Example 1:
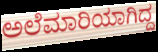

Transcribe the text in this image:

ಅಲೆಮಾರಿಯಾಗಿದ್ದ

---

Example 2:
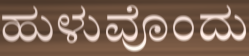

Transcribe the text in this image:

ಹುಳುವೊಂದು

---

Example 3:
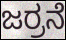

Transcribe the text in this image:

ಜರ್ರನೆ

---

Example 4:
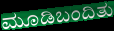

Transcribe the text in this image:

ಮೂಡಿಬಂದಿತು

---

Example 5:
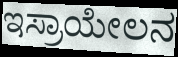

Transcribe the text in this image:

ಇಸ್ರಾಯೇಲನ